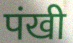
पंखी